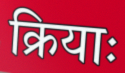
क्रियाः